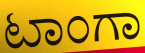
ಟಾಂಗಾ